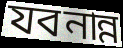
যবনান্ন